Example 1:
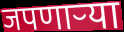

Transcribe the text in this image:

जपणाऱ्या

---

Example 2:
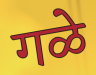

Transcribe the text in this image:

गळे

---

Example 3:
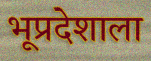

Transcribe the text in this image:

भूप्रदेशाला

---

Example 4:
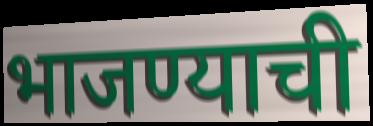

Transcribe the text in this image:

भाजण्याची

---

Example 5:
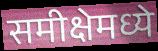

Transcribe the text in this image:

समीक्षेमध्ये